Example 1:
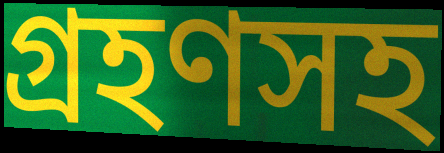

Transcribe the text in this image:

গ্রহণসহ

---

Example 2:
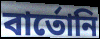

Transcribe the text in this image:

বার্তোনি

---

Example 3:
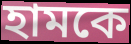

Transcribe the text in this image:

হামকে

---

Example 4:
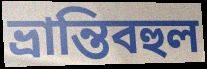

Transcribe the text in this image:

ভ্রান্তিবহুল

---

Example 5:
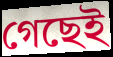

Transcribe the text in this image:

গেছেই